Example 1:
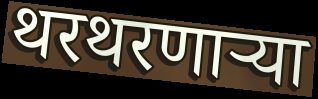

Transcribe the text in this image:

थरथरणाऱ्या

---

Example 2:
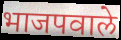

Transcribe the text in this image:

भाजपवाले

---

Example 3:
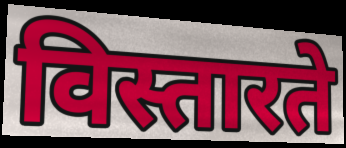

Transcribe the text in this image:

विस्तारते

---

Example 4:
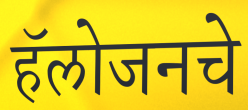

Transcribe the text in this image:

हॅलोजनचे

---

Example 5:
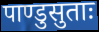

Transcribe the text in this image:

पाण्डुसुताः